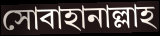
সোবাহানাল্লাহ